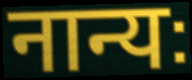
नान्यः